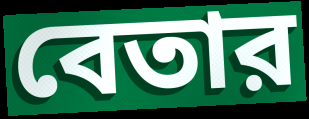
বেতার